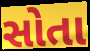
સોતા